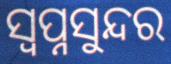
ସ୍ୱପ୍ନସୁନ୍ଦର